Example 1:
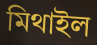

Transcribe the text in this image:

মিথাইল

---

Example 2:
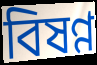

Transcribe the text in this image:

বিষণ্ন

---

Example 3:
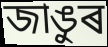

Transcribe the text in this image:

জাঙুৰ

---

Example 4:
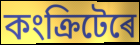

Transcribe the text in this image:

কংক্ৰিটেৰে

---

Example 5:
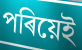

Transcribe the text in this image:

পৰিয়েই